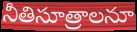
నీతిసూత్రాలనూ